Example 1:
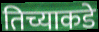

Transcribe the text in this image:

तिच्याकडे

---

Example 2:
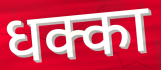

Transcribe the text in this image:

धक्का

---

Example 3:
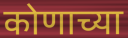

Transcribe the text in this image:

कोणाच्या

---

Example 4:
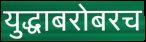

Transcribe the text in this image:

युद्धाबरोबरच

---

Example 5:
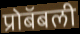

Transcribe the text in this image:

प्रोबॅबली